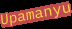
Upamanyu